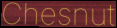
Chesnut